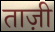
ताज़ी